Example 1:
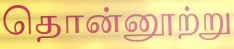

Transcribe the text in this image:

தொன்னூற்று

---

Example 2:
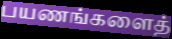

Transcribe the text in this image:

பயணங்களைத்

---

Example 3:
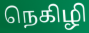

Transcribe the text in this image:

நெகிழி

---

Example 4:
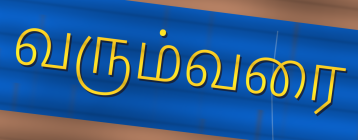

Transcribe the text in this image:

வரும்வரை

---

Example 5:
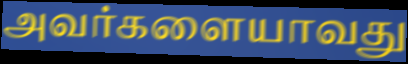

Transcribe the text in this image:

அவர்களையாவது